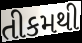
તીકમથી